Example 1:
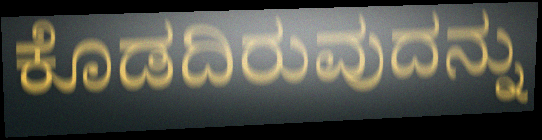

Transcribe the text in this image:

ಕೊಡದಿರುವುದನ್ನು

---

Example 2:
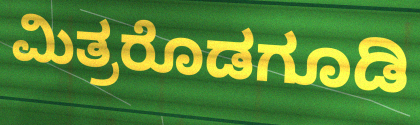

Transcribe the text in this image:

ಮಿತ್ರರೊಡಗೂಡಿ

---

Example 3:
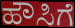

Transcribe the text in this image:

ಹೌಸಿಗೆ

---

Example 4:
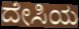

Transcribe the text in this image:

ದೇಸಿಯ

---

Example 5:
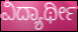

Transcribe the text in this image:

ವಿದ್ಯಾರ್ಥೀ